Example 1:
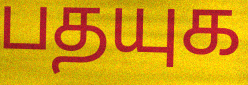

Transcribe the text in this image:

பதயுக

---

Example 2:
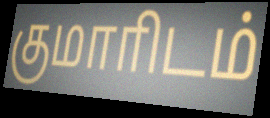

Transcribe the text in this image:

குமாரிடம்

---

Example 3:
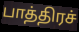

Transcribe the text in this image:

பாத்திரச்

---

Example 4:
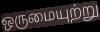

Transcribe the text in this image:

ஒருமையுற்று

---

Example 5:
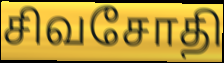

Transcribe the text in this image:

சிவசோதி